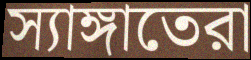
স্যাঙ্গাতেরা